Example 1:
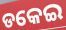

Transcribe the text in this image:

ଡକେଇ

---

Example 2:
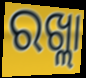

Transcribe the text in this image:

ରଖ୍ଲା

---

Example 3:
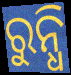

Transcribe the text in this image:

ରୁନ୍ଧି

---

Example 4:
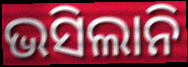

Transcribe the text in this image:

ଭସିଲାନି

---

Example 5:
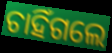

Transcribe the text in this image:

ଚାହିଁଗଲେ